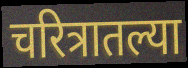
चरित्रातल्या